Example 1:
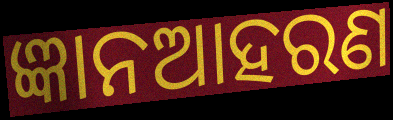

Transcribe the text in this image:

ଜ୍ଞାନଆହରଣ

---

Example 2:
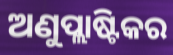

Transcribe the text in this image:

ଅଣୁପ୍ଲାଷ୍ଟିକର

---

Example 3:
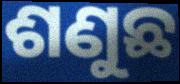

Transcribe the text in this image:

ଶଣୁଛ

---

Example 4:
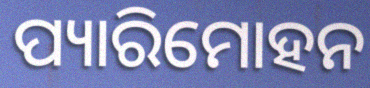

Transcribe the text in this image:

ପ୍ୟାରିମୋହନ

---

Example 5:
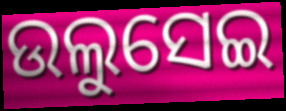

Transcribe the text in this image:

ଉଲୁସେଇ